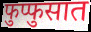
फुप्फुसात